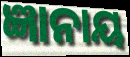
ଜ୍ଞାନାୟ